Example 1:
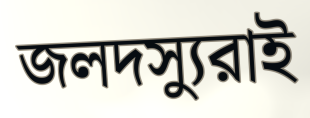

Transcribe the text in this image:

জলদস্যুরাই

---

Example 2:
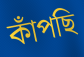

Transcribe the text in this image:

কাঁপছি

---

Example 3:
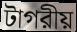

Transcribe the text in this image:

টাগরীয়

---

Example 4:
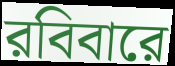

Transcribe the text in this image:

রবিবারে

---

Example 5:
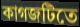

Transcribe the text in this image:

কাগজটিতে